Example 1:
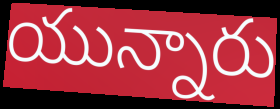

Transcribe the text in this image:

యున్నారు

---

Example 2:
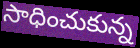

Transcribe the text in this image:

సాధించుకున్న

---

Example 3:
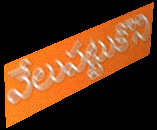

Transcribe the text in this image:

వేలుపట్టుకొని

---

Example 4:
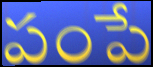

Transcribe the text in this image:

పంపే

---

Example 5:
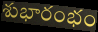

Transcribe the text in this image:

శుభారంభం